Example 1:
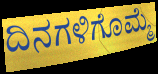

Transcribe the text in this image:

ದಿನಗಳಿಗೊಮ್ಮೆ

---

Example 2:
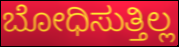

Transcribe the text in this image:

ಬೋಧಿಸುತ್ತಿಲ್ಲ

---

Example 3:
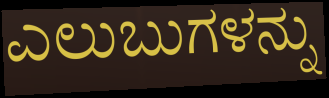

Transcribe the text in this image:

ಎಲುಬುಗಳನ್ನು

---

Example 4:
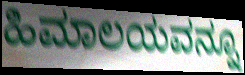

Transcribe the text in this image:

ಹಿಮಾಲಯವನ್ನೂ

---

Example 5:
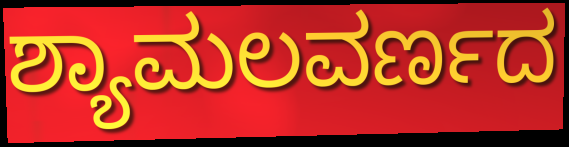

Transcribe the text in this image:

ಶ್ಯಾಮಲವರ್ಣದ